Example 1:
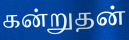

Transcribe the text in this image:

கன்றுதன்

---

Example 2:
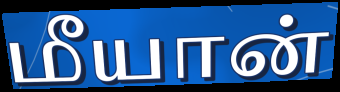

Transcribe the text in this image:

மீயான்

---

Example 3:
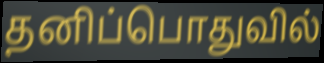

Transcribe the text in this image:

தனிப்பொதுவில்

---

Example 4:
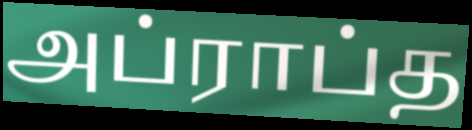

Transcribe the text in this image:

அப்ராப்த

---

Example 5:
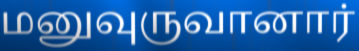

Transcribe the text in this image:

மனுவுருவானார்